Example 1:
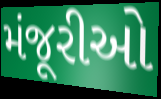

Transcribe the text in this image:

મંજૂરીઓ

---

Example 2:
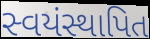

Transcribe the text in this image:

સ્વયંસ્થાપિત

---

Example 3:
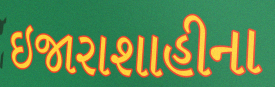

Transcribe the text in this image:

ઇજારાશાહીના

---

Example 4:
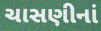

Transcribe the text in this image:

ચાસણીનાં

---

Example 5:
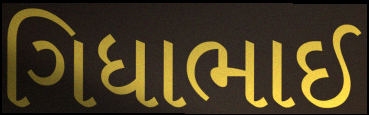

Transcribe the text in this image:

ગિધાભાઈ